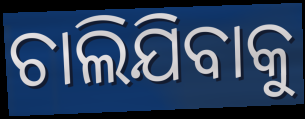
ଚାଲିଯିବାକୁ